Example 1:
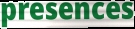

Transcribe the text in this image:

presences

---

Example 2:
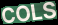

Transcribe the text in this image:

COLS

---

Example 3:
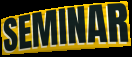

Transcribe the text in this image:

SEMINAR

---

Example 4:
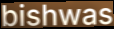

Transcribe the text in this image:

bishwas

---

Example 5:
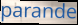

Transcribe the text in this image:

parande